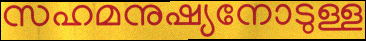
സഹമനുഷ്യനോടുള്ള